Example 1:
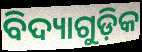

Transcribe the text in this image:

ବିଦ୍ୟାଗୁଡ଼ିକ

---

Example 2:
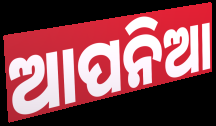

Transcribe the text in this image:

ଆପନିଆ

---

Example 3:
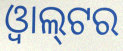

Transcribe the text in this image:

ଓ୍ୱାଲ୍‍ଟର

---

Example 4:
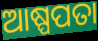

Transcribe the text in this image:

ଆଷ୍ପପତା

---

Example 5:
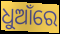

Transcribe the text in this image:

ଧୁଆଁରେ